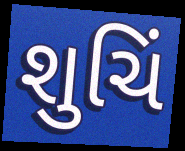
શુચિં